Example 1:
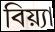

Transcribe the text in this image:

বিয়্যা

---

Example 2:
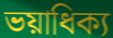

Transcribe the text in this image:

ভয়াধিক্য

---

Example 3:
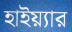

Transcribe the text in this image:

হাইয়্যার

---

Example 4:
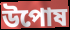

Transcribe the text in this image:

উপোষ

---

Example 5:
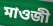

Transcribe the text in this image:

মাওজী